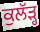
ਕੁਲੱੜ੍ਹ